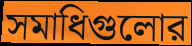
সমাধিগুলোর